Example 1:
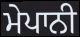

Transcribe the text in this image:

ਮੇਪਾਨੀ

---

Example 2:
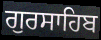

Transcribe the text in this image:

ਗੁਰਸਾਹਿਬ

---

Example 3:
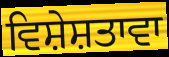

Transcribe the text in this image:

ਵਿਸ਼ੇਸ਼ਤਾਵਾ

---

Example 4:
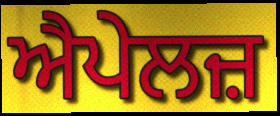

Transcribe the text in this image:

ਐਪੇਲਜ਼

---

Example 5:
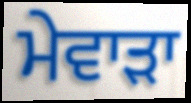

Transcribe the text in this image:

ਮੇਵਾੜਾ